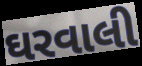
ઘરવાલી